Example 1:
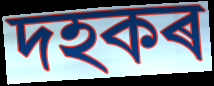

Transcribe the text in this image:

দহকৰ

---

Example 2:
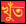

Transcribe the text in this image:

খুঁত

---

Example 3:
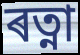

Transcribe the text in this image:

ৰত্না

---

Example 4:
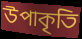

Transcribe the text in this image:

উপাকৃতি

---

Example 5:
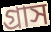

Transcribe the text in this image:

গ্ৰাস